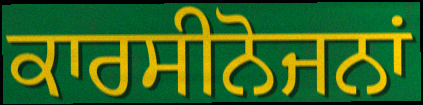
ਕਾਰਸੀਨੋਜਨਾਂ